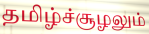
தமிழ்ச்சூழலும்